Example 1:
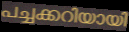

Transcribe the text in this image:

പച്ചക്കറിയായി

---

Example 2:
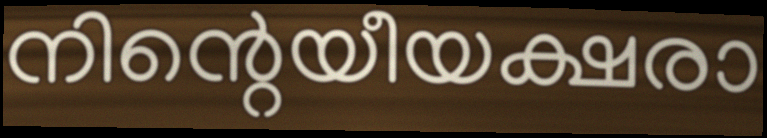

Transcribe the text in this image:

നിന്റെയീയക്ഷരാ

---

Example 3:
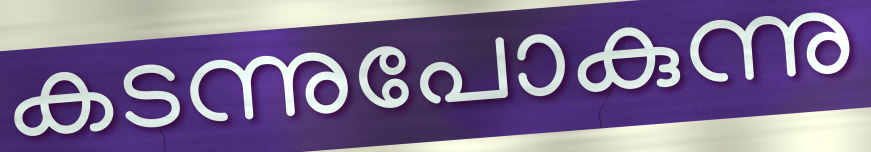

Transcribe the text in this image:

കടന്നുപോകുന്നു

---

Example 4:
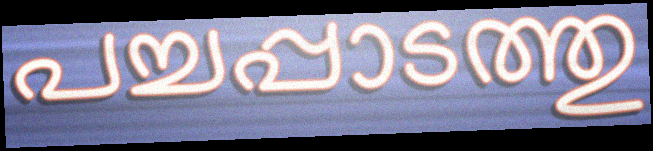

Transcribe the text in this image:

പച്ചപ്പാടത്തു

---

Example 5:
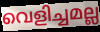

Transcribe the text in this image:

വെളിച്ചമല്ല